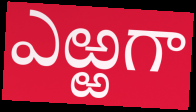
ఎఱ్ఱగా